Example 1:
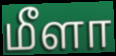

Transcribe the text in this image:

மீளா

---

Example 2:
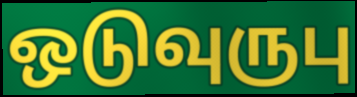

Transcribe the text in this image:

ஒடுவுருபு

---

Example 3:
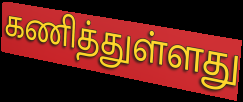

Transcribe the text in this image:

கணித்துள்ளது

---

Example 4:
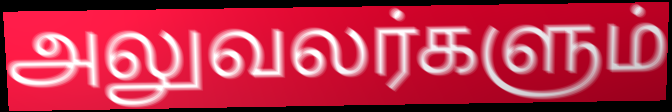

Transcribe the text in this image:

அலுவலர்களும்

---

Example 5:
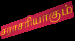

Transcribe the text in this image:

சராசரியாகும்